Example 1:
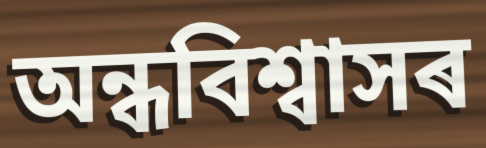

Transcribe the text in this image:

অন্ধবিশ্বাসৰ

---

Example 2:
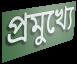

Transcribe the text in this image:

প্ৰমুখ্যে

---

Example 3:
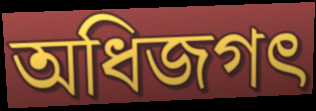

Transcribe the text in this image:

অধিজগৎ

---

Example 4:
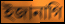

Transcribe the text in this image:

ইজানাগি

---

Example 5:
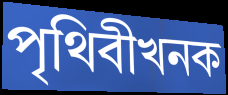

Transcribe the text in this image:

পৃথিবীখনক